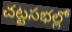
చట్టసభల్లో